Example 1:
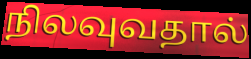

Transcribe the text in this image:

நிலவுவதால்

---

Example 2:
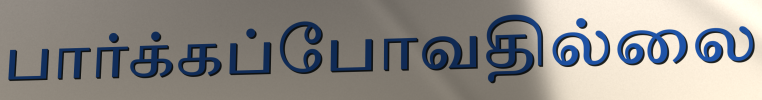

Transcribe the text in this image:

பார்க்கப்போவதில்லை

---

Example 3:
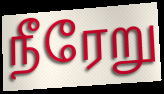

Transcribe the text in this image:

நீரேறு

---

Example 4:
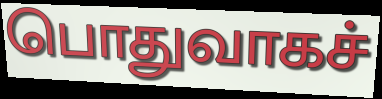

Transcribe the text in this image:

பொதுவாகச்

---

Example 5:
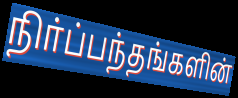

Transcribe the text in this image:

நிர்ப்பந்தங்களின்